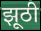
झूठी